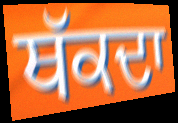
ਥੱਕਦਾ